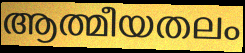
ആത്മീയതലം